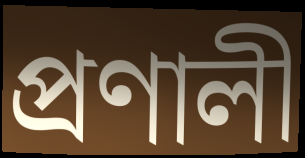
প্ৰণালী